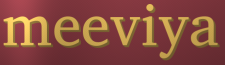
meeviya